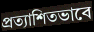
প্রত্যাশিতভাবে